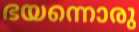
ഭയന്നൊരു